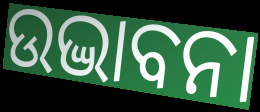
ଉଦ୍ଭାବନା